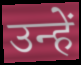
उन्हें